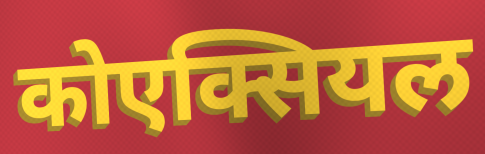
कोएक्सियल